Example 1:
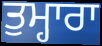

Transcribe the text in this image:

ਤੁਮ੍ਹਾਰਾ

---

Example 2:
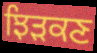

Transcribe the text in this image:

ਝਿੜਕਣ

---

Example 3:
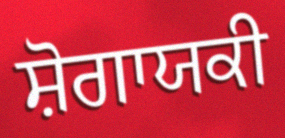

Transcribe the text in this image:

ਸ਼ੋਗਾਯਕੀ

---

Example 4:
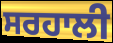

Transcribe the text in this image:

ਸਰਹਾਲੀ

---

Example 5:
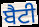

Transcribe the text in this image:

ਬੈਟੀ